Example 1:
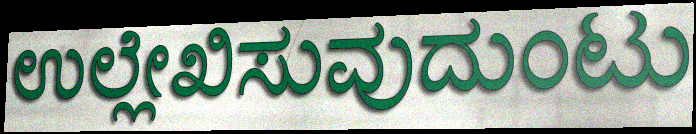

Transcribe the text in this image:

ಉಲ್ಲೇಖಿಸುವುದುಂಟು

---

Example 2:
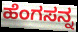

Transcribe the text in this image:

ಹೆಂಗಸನ್ನ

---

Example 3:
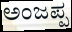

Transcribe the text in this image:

ಅಂಜಪ್ಪ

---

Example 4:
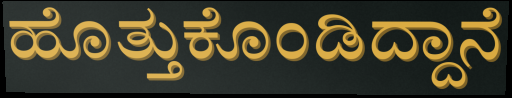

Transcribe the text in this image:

ಹೊತ್ತುಕೊಂಡಿದ್ದಾನೆ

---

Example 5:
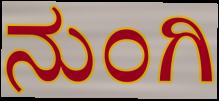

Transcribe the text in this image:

ನುಂಗಿ